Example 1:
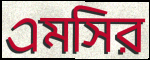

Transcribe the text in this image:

এমসির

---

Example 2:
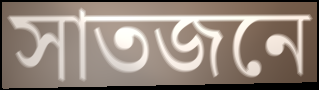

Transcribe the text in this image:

সাতজনে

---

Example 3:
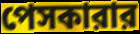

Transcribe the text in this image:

পেসকারার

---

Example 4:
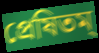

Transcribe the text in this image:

প্রেষিতম্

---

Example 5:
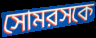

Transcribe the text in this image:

সোমরসকে